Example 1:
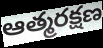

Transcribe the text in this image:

ఆత్మరక్షణ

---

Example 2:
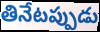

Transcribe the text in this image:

తినేటప్పుడు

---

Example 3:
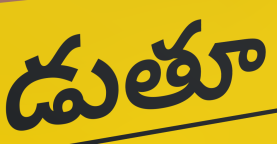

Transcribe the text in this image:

డుతూ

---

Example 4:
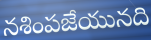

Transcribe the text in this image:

నశింపజేయునది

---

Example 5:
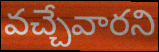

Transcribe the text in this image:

వచ్చేవారని